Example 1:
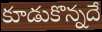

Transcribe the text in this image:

కూడుకొన్నదే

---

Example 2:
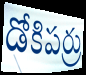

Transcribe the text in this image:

డోకిపర్రు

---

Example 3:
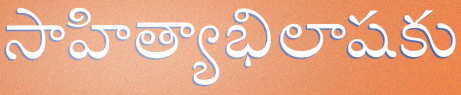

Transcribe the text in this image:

సాహిత్యాభిలాషకు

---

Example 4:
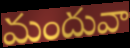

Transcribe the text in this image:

మందువా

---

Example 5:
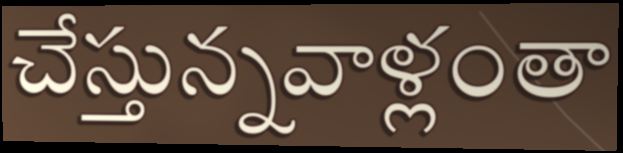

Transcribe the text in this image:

చేస్తున్నవాళ్లంతా